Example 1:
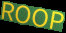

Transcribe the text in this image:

ROOP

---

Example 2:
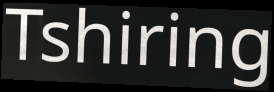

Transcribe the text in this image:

Tshiring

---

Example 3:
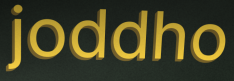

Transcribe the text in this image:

joddho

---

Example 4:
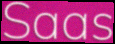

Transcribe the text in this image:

Saas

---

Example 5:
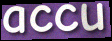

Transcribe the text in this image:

accu